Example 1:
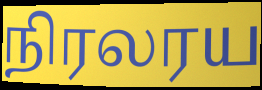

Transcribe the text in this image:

நிரலரய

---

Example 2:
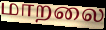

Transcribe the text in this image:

மாறலை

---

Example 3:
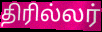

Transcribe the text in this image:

திரில்லர்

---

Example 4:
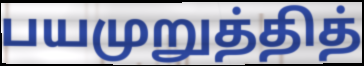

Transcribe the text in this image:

பயமுறுத்தித்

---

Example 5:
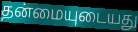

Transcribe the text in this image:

தன்மையுடையது